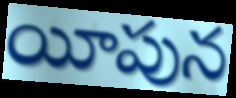
యీపున